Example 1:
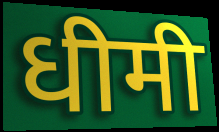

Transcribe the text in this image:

धीमी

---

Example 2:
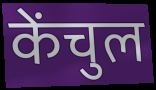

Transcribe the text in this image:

केंचुल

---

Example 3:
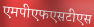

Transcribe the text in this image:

एमपीएफएसटीएस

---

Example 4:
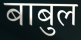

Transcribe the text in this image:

बाबुल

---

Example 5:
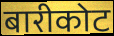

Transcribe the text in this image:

बारीकोट